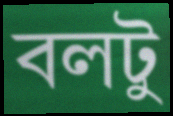
বলটু